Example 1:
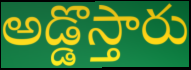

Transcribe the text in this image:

అడ్డొస్తారు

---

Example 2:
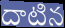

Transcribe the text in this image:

దాటిన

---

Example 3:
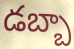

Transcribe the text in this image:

డబ్బా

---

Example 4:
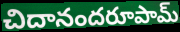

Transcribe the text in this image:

చిదానందరూపామ్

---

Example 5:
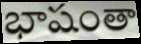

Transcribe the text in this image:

భాషంతా